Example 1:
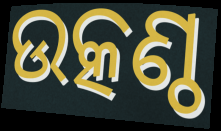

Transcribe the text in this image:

ଉତ୍କଣ୍ଠ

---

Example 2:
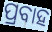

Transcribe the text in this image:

ପ୍ରବାହ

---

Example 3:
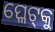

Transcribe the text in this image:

ପ୍ଳେଟ୍‌କୁ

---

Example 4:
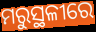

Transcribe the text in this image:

ମରୁସ୍ଥଳୀରେ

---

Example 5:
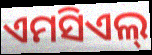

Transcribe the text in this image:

ଏମସିଏଲ୍